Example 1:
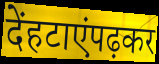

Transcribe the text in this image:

देंहटाएंपढ़कर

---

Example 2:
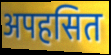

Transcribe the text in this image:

अपहसित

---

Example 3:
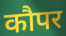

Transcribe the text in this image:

कौपर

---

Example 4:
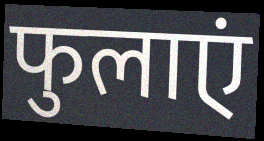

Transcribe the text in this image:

फुलाएं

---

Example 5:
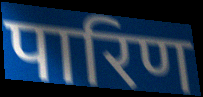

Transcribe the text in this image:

पारिण